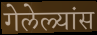
गेलेल्यांस